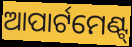
ଆପାର୍ଟମେଣ୍ଟ୍